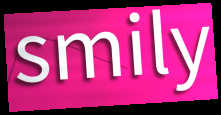
smily